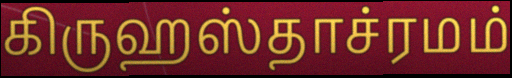
கிருஹஸ்தாச்ரமம்